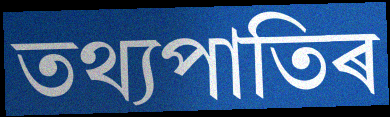
তথ্যপাতিৰ